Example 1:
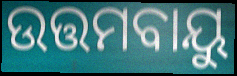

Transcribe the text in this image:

ଉତ୍ତମବାୟୁ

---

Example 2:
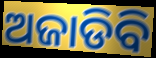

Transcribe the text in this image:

ଅଜାଡିବି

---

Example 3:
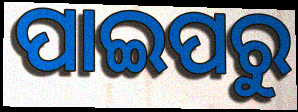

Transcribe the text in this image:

ପାଇପରୁ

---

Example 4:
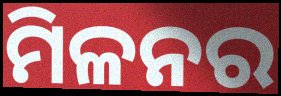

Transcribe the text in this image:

ମିଳନର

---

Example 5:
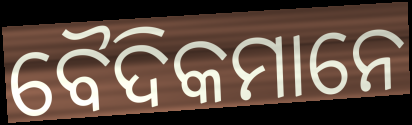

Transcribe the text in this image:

ବୈଦିକମାନେ